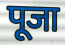
पूजा